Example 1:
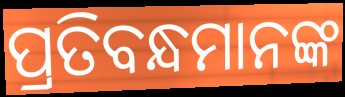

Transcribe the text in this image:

ପ୍ରତିବନ୍ଧମାନଙ୍କ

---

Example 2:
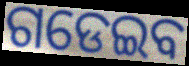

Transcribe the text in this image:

ଗଡେଇବ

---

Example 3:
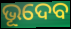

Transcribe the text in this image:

ଭୂଦେବ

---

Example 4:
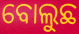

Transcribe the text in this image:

ବୋଲୁଛ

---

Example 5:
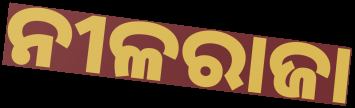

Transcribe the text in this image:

ନୀଳରାଜା